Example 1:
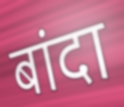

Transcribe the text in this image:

बांदा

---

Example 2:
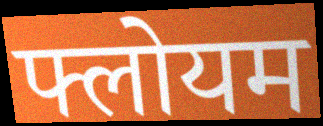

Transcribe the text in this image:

फ्लोयम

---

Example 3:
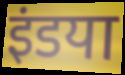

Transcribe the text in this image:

इंडया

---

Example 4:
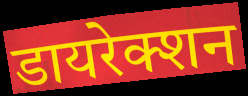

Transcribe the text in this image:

डायरेक्शन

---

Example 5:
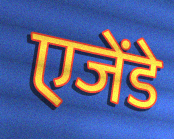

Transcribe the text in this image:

एजेंडे